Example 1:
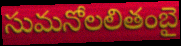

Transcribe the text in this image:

సుమనోలలితంబై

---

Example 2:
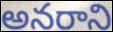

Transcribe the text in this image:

అనరాని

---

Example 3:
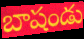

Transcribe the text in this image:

బాషండు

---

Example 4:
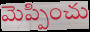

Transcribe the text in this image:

మెప్పించు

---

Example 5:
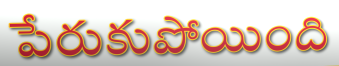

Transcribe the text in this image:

పేరుకుపోయింది